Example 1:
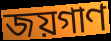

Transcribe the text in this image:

জয়গাণ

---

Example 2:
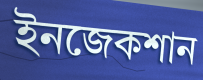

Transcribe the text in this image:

ইনজেকশান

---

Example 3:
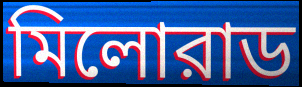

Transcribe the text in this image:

মিলোরাড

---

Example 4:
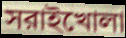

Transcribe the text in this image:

সরাইখোলা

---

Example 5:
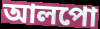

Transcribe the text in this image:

আলপো